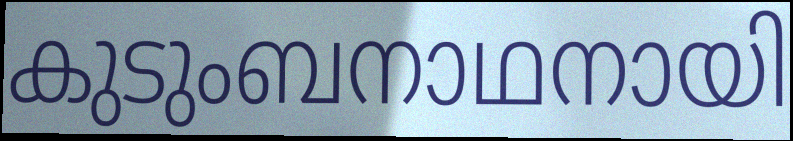
കുടുംബനാഥനായി